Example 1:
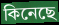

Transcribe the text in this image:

কিনেছে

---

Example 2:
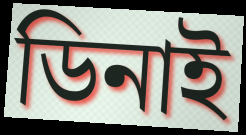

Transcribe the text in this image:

ডিনাই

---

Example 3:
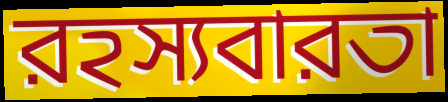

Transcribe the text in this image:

রহস্যবারতা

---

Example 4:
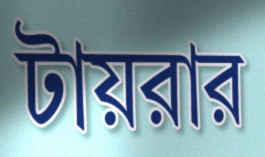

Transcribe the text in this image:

টায়রার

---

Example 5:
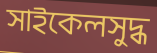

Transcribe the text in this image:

সাইকেলসুদ্ধ